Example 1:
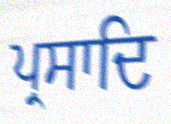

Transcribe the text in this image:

ਪ੍ਰਸਾਦਿ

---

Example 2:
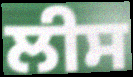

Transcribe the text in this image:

ਲੀਸ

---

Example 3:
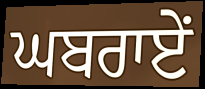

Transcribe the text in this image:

ਘਬਰਾਏਂ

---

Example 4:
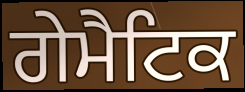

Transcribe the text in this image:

ਗੇਮੈਟਿਕ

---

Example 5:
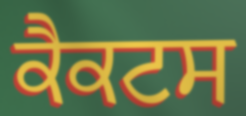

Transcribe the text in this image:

ਕੈਕਟਸ